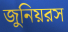
জুনিয়রস